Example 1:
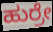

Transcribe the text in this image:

ಹುರ್ರೇ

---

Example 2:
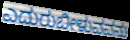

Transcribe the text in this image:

ಎದುರುಬೀಳುವವನು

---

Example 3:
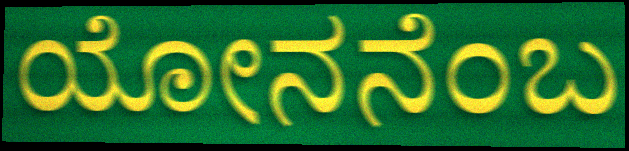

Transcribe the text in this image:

ಯೋನನೆಂಬ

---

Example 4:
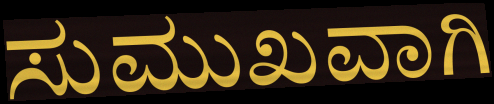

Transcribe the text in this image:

ಸುಮುಖವಾಗಿ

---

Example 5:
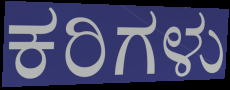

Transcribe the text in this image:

ಕರಿಗಳು